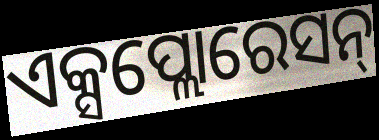
ଏକ୍ସପ୍ଲୋରେସନ୍